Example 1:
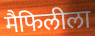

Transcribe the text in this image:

मैफिलीला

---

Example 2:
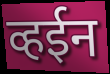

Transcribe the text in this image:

व्हईन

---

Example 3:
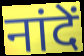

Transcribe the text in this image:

नांदें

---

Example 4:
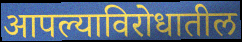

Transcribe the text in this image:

आपल्याविरोधातील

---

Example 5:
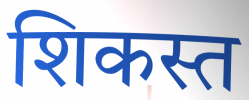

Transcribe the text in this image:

शिकस्त